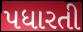
પધારતી